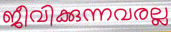
ജീവിക്കുന്നവരല്ല